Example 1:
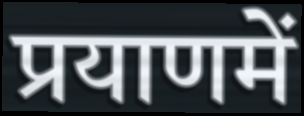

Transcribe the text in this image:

प्रयाणमें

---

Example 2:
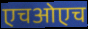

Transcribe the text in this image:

एचओएच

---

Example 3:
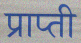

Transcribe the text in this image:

प्राप्ती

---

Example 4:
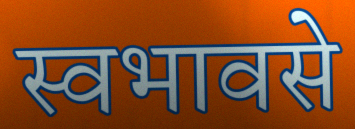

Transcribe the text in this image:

स्वभावसे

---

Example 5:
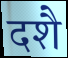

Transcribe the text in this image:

दशै